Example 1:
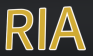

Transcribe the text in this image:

RIA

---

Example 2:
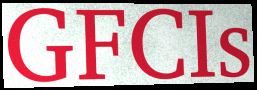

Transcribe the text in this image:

GFCIs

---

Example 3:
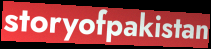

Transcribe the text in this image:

storyofpakistan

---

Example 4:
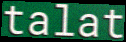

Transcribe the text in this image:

talat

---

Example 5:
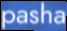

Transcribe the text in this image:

pasha